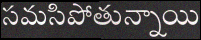
సమసిపోతున్నాయి